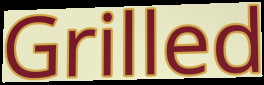
Grilled